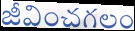
జీవించగలం